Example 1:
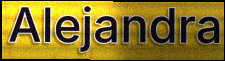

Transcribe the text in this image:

Alejandra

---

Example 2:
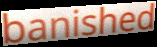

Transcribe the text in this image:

banished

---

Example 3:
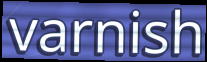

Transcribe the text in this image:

varnish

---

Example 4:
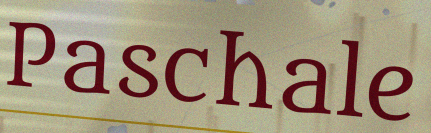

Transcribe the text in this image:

Paschale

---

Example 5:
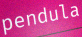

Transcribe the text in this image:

pendula